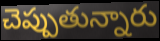
చెప్పుతున్నారు